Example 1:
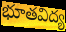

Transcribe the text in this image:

భూతవిద్య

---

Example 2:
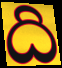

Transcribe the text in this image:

ది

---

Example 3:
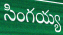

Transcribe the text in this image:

సింగయ్య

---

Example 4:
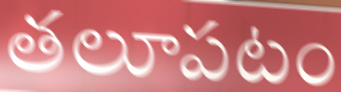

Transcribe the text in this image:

తలూపటం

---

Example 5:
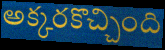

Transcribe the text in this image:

అక్కరకొచ్చింది